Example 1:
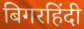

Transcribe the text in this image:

बिगरहिंदी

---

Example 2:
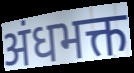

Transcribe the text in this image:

अंधभक्त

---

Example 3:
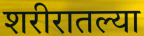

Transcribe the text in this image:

शरीरातल्या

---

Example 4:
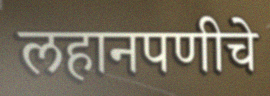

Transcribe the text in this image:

लहानपणीचे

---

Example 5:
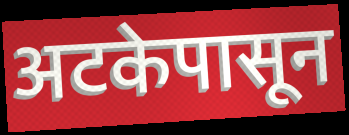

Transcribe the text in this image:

अटकेपासून